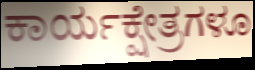
ಕಾರ್ಯಕ್ಷೇತ್ರಗಳೂ